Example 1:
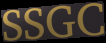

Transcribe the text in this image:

SSGC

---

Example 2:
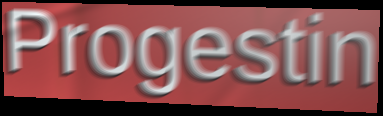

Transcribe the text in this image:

Progestin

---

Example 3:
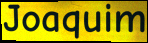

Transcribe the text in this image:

Joaquim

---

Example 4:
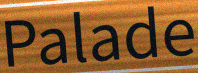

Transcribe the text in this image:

Palade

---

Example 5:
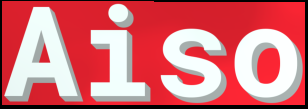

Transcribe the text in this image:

Aiso